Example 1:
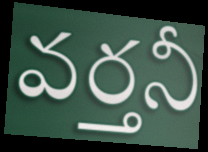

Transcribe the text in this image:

వర్తనీ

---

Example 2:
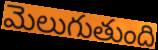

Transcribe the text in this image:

మెలుగుతుంది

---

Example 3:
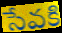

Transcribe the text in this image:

సేవకి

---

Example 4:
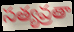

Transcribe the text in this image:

సత్యవ్రతా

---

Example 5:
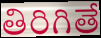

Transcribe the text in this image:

తిరిగితే